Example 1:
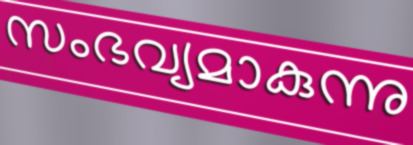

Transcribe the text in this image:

സംഭവ്യമാകുന്നു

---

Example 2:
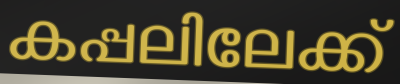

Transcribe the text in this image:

കപ്പലിലേക്ക്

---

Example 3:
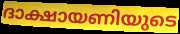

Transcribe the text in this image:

ദാക്ഷായണിയുടെ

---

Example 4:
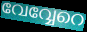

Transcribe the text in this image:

വേവ്വേറെ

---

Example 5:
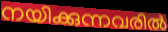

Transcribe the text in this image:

നയിക്കുന്നവരിൽ